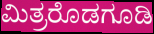
ಮಿತ್ರರೊಡಗೂಡಿ